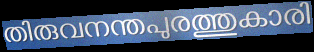
തിരുവനന്തപുരത്തുകാരി